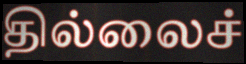
தில்லைச்